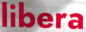
libera